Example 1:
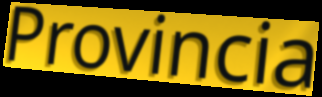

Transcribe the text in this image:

Provincia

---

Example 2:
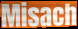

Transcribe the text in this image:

Misach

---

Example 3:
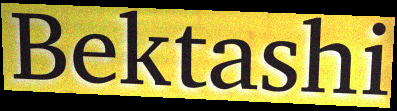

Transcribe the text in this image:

Bektashi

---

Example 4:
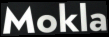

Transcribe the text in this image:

Mokla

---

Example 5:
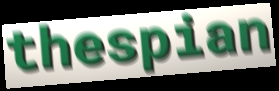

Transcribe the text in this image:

thespian